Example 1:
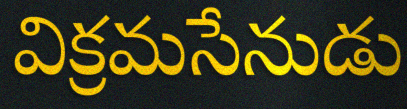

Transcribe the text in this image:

విక్రమసేనుడు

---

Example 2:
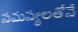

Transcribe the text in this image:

సమస్యలతోనే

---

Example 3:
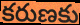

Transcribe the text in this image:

కరుణకు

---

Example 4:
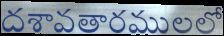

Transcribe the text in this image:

దశావతారములలో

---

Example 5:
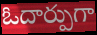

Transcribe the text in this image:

ఓదార్పుగా